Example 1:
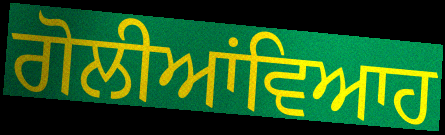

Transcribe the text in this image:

ਗੋਲੀਆਂਵਿਆਹ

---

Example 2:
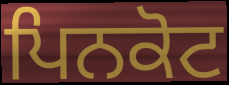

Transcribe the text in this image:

ਪਿਨਕੋਟ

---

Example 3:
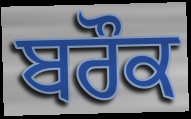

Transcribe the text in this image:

ਬਰੌਕ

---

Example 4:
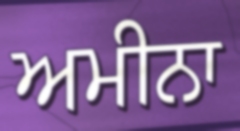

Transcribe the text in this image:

ਅਮੀਨਾ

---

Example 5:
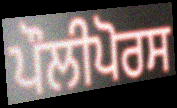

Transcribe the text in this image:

ਪੌਲੀਪੋਰਸ